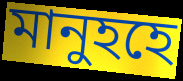
মানুহহে